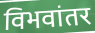
विभवांतर